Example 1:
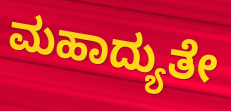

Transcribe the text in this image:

ಮಹಾದ್ಯುತೇ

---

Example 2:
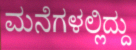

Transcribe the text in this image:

ಮನೆಗಳಲ್ಲಿದ್ದು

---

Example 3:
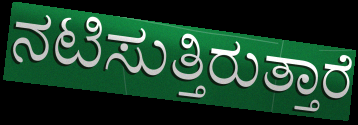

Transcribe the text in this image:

ನಟಿಸುತ್ತಿರುತ್ತಾರೆ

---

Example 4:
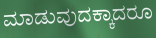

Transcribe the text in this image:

ಮಾಡುವುದಕ್ಕಾದರೂ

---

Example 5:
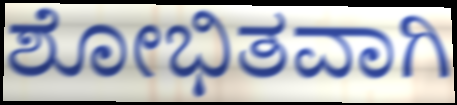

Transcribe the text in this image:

ಶೋಭಿತವಾಗಿ